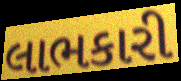
લાભકારી